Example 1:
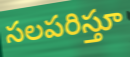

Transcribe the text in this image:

సలపరిస్తూ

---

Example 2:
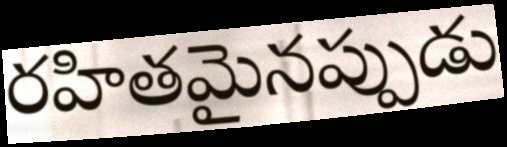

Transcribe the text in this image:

రహితమైనప్పుడు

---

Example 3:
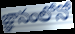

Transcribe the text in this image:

జ్ఞానంలోనో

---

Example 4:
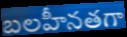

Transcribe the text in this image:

బలహీనతగా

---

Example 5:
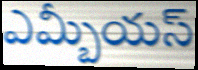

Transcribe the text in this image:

ఎమ్బీయస్